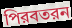
পিরবতরন